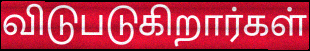
விடுபடுகிறார்கள்